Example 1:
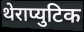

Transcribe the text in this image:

थेराप्युटिक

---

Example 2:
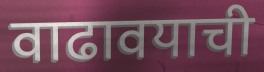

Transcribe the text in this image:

वाढावयाची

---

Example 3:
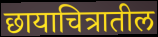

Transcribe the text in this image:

छायाचित्रातील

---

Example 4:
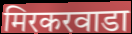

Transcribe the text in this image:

मिरकरवाडा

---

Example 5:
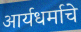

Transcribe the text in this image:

आर्यधर्माचे